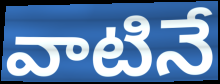
వాటినే